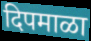
दिपमाळा